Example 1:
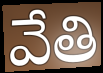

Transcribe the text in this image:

వేతి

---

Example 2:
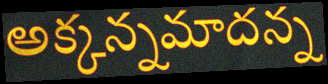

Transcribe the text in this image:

అక్కన్నమాదన్న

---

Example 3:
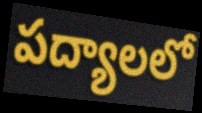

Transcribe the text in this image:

పద్యాలలో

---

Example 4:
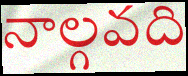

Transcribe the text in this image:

నాల్గవది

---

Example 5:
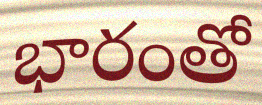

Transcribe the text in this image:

భారంతో